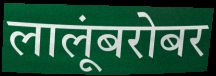
लालूंबरोबर